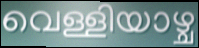
വെള്ളിയാഴ്ച